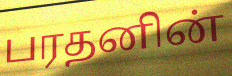
பரதனின்